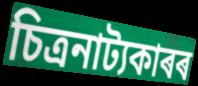
চিত্ৰনাট্যকাৰৰ